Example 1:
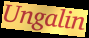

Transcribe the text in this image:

Ungalin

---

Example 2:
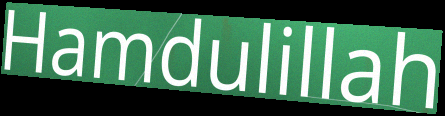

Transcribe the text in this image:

Hamdulillah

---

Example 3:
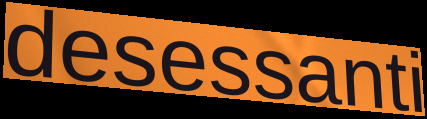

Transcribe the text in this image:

desessanti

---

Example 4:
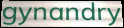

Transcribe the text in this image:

gynandry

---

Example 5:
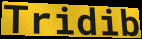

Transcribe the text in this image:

Tridib